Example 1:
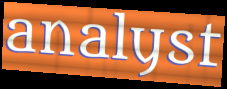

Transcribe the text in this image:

analyst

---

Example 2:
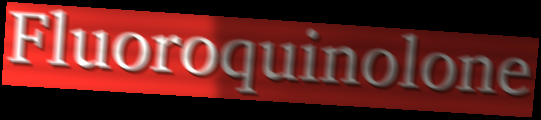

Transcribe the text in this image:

Fluoroquinolone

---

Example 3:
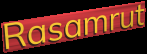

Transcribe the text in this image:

Rasamrut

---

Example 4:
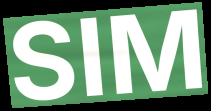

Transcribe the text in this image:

SIM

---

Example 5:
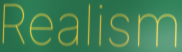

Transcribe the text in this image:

Realism